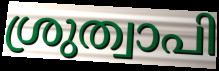
ശ്രുത്വാപി